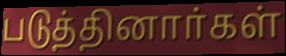
படுத்தினார்கள்